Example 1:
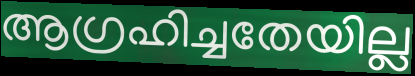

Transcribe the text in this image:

ആഗ്രഹിച്ചതേയില്ല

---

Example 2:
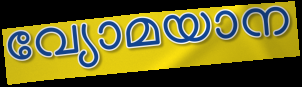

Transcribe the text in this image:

വ്യോമയാന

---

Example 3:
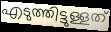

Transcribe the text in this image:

എടുത്തിട്ടുള്ളത്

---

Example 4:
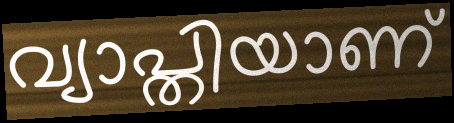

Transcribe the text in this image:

വ്യാപ്തിയാണ്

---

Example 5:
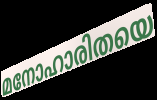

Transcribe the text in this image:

മനോഹാരിതയെ